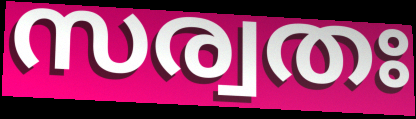
സര്വതഃ